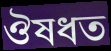
ঔষধত